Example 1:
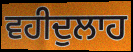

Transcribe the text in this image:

ਵਹੀਦੁਲਾਹ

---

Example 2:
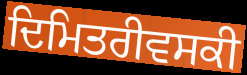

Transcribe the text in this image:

ਦਿਮਿਤਰੀਵਸਕੀ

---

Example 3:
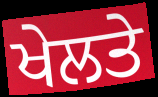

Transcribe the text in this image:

ਖੇਲਤੇ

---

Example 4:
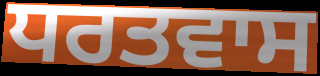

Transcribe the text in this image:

ਧਰਤਵਾਸ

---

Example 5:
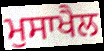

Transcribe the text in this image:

ਮੁਸਾਖੈਲ